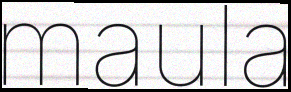
maula